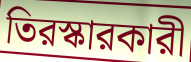
তিরস্কারকারী